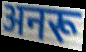
अनरू